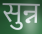
सुन्न